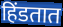
हिंडतात